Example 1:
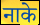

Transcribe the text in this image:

नाके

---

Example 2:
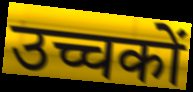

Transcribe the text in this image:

उच्चकों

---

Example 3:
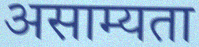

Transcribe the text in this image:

असाम्यता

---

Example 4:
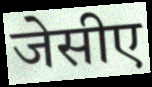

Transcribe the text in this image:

जेसीए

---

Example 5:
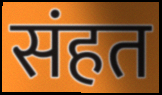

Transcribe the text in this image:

संहत